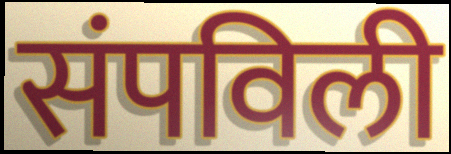
संपविली